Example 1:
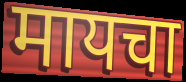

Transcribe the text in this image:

मायचा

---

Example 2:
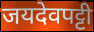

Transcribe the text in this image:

जयदेवपट्टी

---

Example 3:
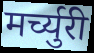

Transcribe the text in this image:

मर्च्युरी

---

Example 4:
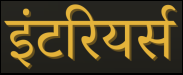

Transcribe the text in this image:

इंटरियर्स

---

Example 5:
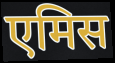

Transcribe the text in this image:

एमिस